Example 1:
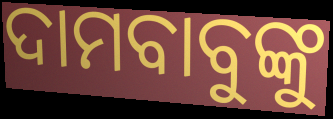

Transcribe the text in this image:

ଦାମବାବୁଙ୍କୁ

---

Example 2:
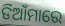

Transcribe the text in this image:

ଡିଆଁମାରେ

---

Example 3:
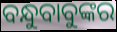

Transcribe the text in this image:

ବନ୍ଧୁବାବୁଙ୍କର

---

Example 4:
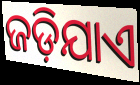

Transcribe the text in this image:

ଜଡ଼ିଯାଏ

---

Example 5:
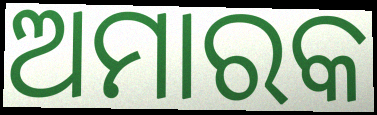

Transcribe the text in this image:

ଅମାରକ